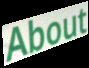
About